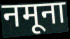
नमूना